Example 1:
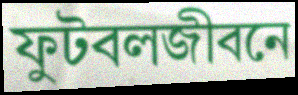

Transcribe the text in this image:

ফুটবলজীবনে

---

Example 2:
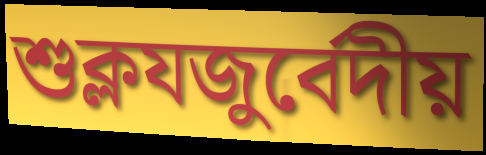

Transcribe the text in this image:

শুক্লযজুর্বেদীয়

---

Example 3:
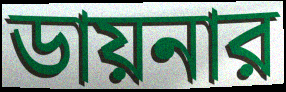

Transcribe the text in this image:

ডায়নার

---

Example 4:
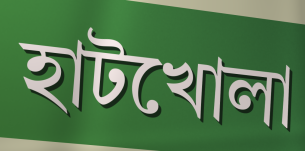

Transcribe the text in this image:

হাটখোলা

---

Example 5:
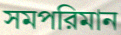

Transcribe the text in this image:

সমপরিমান